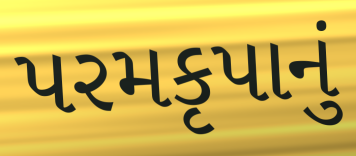
પરમકૃપાનું